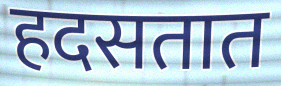
हदसतात